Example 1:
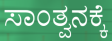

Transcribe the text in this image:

ಸಾಂತ್ವನಕ್ಕೆ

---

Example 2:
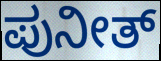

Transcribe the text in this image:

ಪುನೀತ್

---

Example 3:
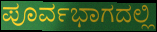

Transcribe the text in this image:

ಪೂರ್ವಭಾಗದಲ್ಲಿ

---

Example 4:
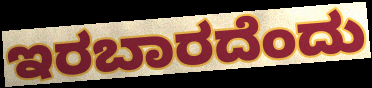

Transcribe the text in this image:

ಇರಬಾರದೆಂದು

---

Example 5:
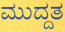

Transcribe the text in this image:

ಮುದ್ದತ